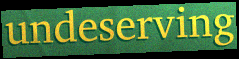
undeserving